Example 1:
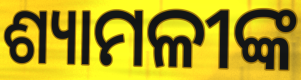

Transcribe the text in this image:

ଶ୍ୟାମଳୀଙ୍କ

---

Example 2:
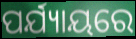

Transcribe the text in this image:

ପର୍ଯ୍ଯାୟରେ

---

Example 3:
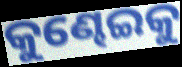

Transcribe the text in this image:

କୁଣ୍ଢେଇକୁ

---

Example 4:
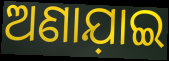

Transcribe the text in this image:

ଅଣାଯ଼ାଇ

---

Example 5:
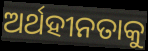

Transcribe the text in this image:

ଅର୍ଥହୀନତାକୁ